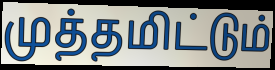
முத்தமிட்டும்